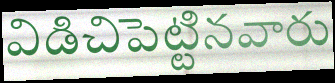
విడిచిపెట్టినవారు